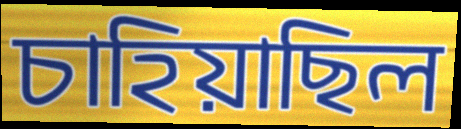
চাহিয়াছিল